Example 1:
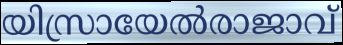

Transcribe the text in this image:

യിസ്രായേൽരാജാവ്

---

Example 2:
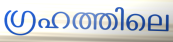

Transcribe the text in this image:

ഗ്രഹത്തിലെ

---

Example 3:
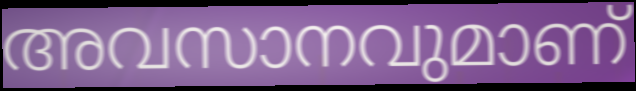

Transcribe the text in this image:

അവസാനവുമാണ്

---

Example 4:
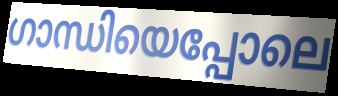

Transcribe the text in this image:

ഗാന്ധിയെപ്പോലെ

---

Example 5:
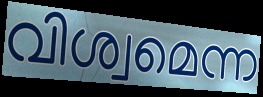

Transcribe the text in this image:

വിശ്വമെന്ന